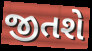
જીતશે